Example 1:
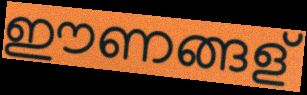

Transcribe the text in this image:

ഈണങ്ങള്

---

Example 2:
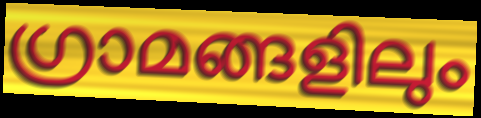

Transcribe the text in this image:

ഗ്രാമങ്ങളിലും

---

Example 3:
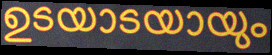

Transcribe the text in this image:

ഉടയാടയായും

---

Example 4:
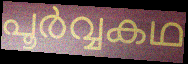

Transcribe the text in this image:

പൂർവ്വകഥ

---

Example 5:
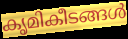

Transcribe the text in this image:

കൃമികീടങ്ങൾ